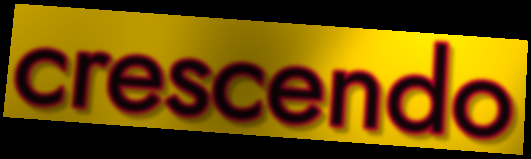
crescendo